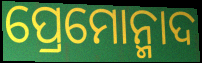
ପ୍ରେମୋନ୍ମାଦ